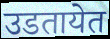
उडतायेत